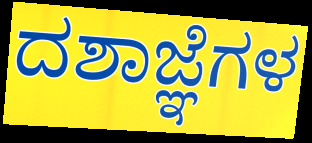
ದಶಾಜ್ಞೆಗಳ